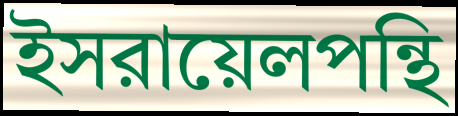
ইসরায়েলপন্থি